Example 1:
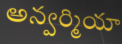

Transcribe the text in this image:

అన్వర్మియా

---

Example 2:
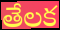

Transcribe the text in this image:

తేలక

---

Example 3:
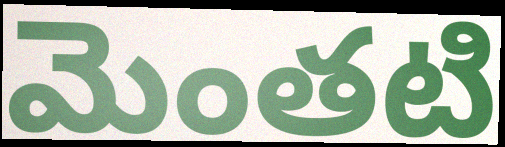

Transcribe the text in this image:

మెంతటి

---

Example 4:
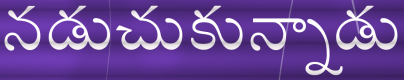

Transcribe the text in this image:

నడుచుకున్నాడు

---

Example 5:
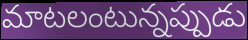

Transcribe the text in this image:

మాటలంటున్నప్పుడు